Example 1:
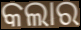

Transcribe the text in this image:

କଲାର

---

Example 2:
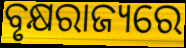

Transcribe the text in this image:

ବୃକ୍ଷରାଜ୍ୟରେ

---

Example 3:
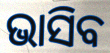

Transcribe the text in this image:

ଭାସିବ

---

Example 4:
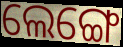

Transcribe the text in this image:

ଲେଙ୍ଗେ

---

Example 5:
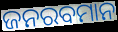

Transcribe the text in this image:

ଜନରବମାନ